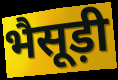
भैसूड़ी